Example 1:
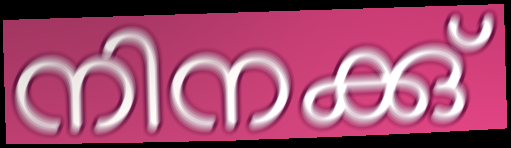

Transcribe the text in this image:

നിനക്കു്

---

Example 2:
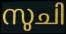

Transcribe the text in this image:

സുചി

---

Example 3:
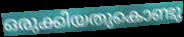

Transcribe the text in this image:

ഒരുക്കിയതുകൊണ്ടു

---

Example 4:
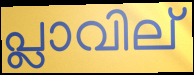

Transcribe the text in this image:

പ്ലാവില്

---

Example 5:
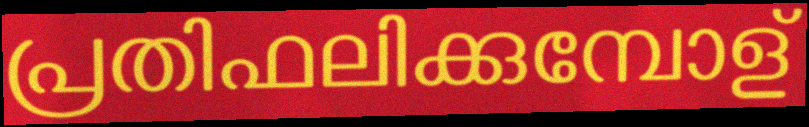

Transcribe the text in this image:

പ്രതിഫലിക്കുമ്പോള്